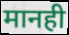
मानही